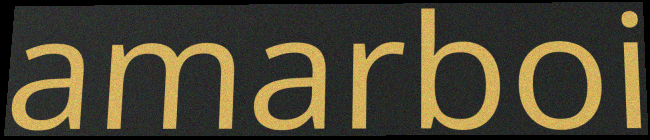
amarboi